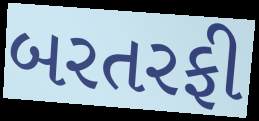
બરતરફી